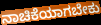
ನಾಚಿಕೆಯಾಗಬೇಕು